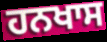
ਹਨਖਾਸ